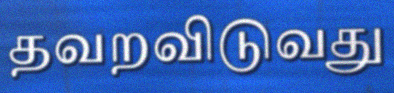
தவறவிடுவது